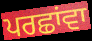
ਪਰਛਾਂਵਾ